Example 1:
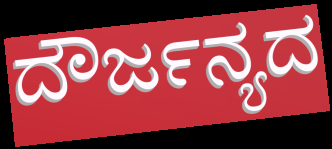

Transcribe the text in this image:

ದೌರ್ಜನ್ಯದ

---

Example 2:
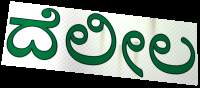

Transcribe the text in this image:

ದೆಲೀಲ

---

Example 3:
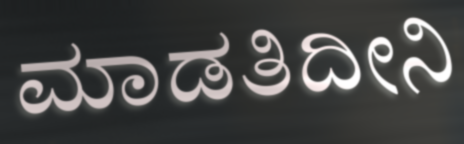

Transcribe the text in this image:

ಮಾಡತಿದೀನಿ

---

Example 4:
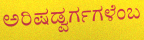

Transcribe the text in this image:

ಅರಿಷಡ್ವರ್ಗಗಳೆಂಬ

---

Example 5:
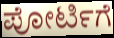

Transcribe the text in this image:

ಪೋರ್ಟಿಗೆ